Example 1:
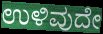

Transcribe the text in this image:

ಉಳಿವುದೇ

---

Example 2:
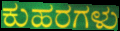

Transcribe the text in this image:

ಕುಹರಗಳು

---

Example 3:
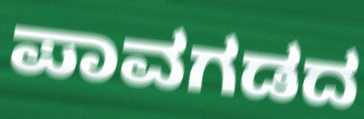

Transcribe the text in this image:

ಪಾವಗಡದ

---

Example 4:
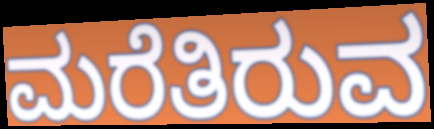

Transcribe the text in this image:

ಮರೆತಿರುವ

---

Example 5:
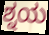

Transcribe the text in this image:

ಶ್ನಯ